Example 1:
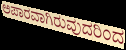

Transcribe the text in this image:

ಅಪಾರವಾಗಿರುವುದರಿಂದ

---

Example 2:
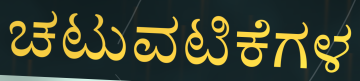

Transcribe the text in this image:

ಚಟುವಟಿಕೆಗಳ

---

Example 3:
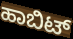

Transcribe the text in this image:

ಹಾಬಿಟ್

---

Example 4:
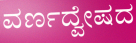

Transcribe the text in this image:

ವರ್ಣದ್ವೇಷದ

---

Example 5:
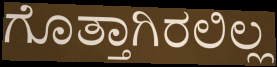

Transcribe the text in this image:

ಗೊತ್ತಾಗಿರಲಿಲ್ಲ